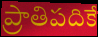
ప్రాతిపదికే